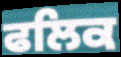
ਫਲਿਕ